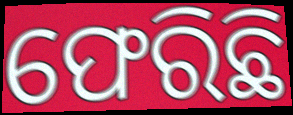
ଫେରିଛି